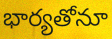
భార్యతోనూ